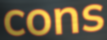
cons